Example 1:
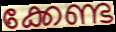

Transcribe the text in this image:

ക്കേണ്ട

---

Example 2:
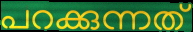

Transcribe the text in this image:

പറക്കുന്നത്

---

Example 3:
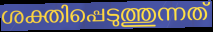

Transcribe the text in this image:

ശക്തിപ്പെടുത്തുന്നത്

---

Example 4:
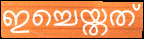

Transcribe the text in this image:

ഇച്ചെയ്തത്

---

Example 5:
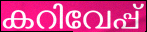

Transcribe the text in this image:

കറിവേപ്പ്